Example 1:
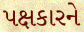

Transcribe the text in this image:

પક્ષકારને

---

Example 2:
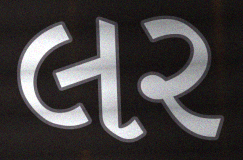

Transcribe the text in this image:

લર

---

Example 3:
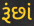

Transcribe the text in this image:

રૂંછાં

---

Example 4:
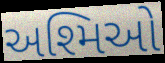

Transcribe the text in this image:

અશ્મિઓ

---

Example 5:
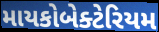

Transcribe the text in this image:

માયકોબેક્ટેરિયમ